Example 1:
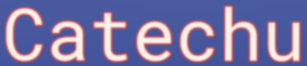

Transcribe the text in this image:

Catechu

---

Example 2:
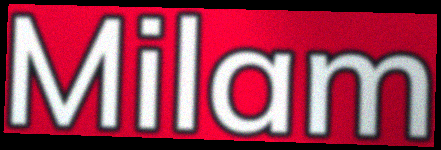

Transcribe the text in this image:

Milam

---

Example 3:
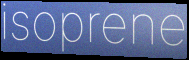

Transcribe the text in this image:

isoprene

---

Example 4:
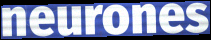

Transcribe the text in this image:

neurones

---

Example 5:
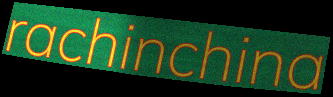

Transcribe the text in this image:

rachinchina